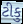
ટીકુ